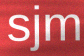
sjm